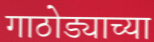
गाठोड्याच्या